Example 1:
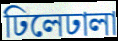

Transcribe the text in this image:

ঢিলেঢালা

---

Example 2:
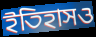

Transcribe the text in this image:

ইতিহাসও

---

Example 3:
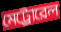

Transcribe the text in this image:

মেট্রোরেল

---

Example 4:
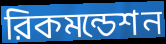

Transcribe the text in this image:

রিকমন্ডেশন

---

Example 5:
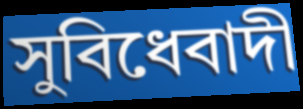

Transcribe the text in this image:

সুবিধেবাদী